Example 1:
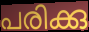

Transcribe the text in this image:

പരിക്കു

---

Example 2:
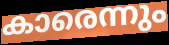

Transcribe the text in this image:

കാരെന്നും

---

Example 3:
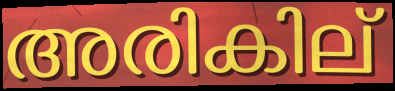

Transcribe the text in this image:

അരികില്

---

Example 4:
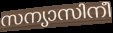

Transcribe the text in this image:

സന്യാസിനീ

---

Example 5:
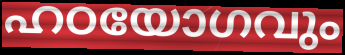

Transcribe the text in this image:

ഹഠയോഗവും